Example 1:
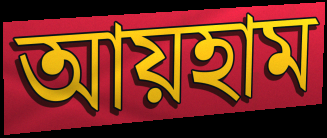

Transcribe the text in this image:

আয়হাম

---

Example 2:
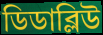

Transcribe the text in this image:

ডিডাব্লিউ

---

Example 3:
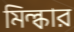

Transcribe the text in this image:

মিল্কার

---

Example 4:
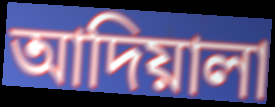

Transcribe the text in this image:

আদিয়ালা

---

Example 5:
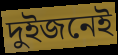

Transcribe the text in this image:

দুইজনেই